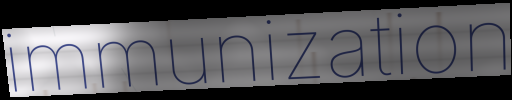
immunization